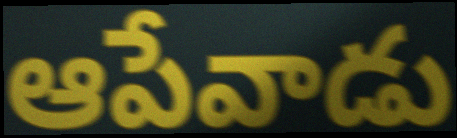
ఆపేవాడు